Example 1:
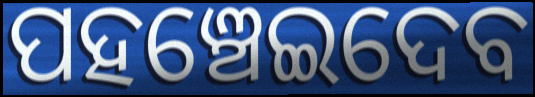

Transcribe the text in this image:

ପହଞ୍ଚେଇଦେବ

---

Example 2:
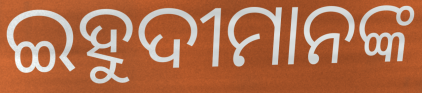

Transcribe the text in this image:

ଇହୁଦୀମାନଙ୍କ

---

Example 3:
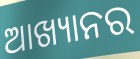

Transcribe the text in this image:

ଆଖ୍ୟାନର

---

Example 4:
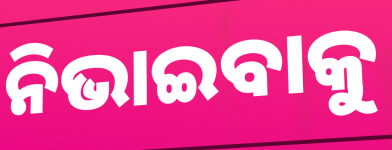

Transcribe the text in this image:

ନିଭାଇବାକୁ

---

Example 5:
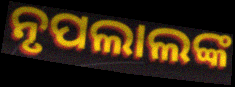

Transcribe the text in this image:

ନୃପଲାଲଙ୍କ